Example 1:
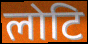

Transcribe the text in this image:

लोटि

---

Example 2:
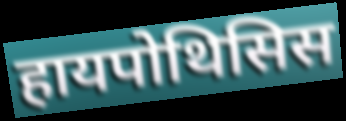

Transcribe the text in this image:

हायपोथिसिस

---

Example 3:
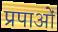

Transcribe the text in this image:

प्रपाओं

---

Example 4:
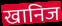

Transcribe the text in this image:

खानिज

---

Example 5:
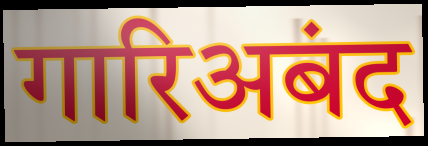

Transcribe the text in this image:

गारिअबंद